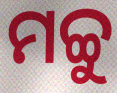
ମଚ୍ଚୁ